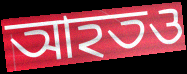
আহতও